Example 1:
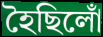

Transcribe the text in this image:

হৈছিলোঁ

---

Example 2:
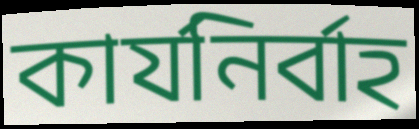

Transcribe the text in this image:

কাৰ্যনিৰ্বাহ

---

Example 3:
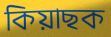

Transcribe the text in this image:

কিয়াছক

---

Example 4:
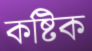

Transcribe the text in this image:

কষ্টিক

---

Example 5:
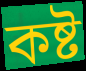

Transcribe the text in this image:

কষ্ট